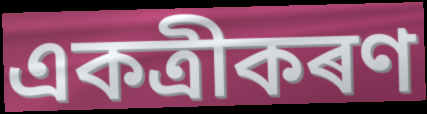
একত্ৰীকৰণ